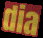
dia